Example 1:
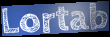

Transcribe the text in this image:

Lortab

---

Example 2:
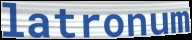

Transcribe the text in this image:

latronum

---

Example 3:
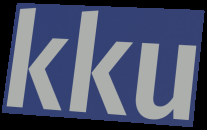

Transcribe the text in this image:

kku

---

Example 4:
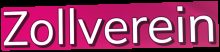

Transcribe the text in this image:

Zollverein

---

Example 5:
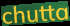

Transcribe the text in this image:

chutta